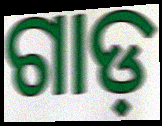
ଗାଡ଼